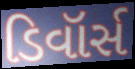
ડિવૉર્સ